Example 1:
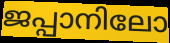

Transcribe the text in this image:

ജപ്പാനിലോ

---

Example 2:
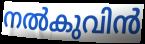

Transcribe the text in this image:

നൽകുവിൻ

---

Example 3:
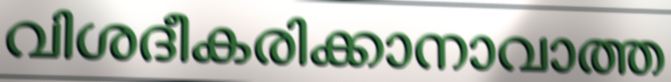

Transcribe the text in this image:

വിശദീകരിക്കാനാവാത്ത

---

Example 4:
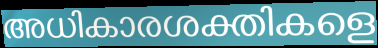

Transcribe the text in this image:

അധികാരശക്തികളെ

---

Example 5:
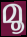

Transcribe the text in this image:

മൂ